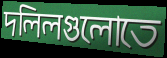
দলিলগুলোতে